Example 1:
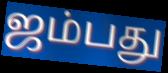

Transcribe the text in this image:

ஜம்பது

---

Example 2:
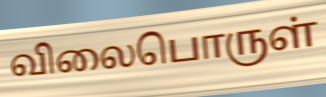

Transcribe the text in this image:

விலைபொருள்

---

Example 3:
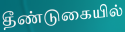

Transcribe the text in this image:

தீண்டுகையில்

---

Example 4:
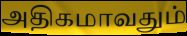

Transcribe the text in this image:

அதிகமாவதும்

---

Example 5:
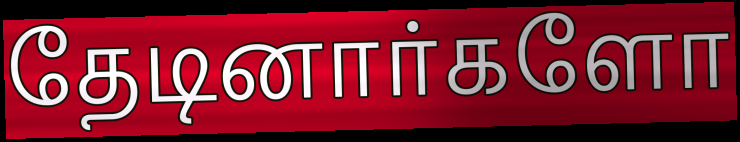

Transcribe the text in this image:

தேடினார்களோ